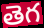
తెగ